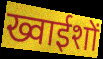
ख्वाईशों